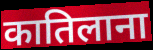
कातिलाना